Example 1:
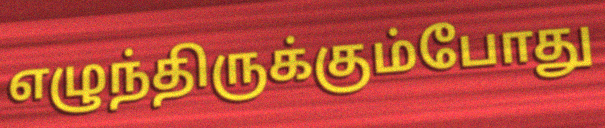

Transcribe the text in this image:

எழுந்திருக்கும்போது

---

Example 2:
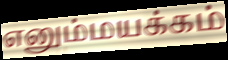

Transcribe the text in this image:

எனும்மயக்கம்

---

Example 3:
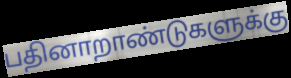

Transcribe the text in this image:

பதினாறாண்டுகளுக்கு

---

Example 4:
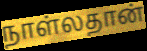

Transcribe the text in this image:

நாள்லதான்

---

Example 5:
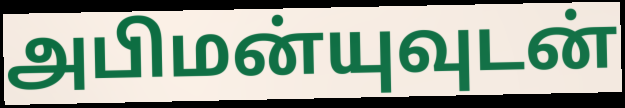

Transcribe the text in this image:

அபிமன்யுவுடன்